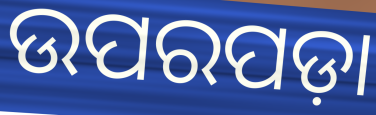
ଉପରପଡ଼ା